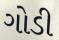
ગોડી